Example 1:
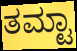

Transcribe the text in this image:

ತಮ್ಟಾ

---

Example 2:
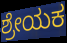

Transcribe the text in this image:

ಶ್ರೇಯಕ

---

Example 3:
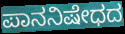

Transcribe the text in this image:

ಪಾನನಿಷೇಧದ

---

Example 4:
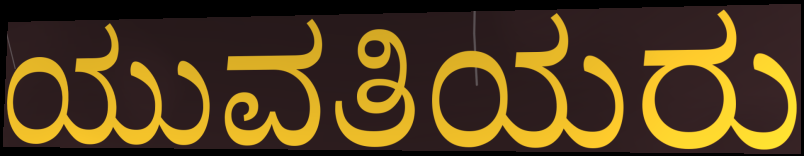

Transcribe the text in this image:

ಯುವತಿಯರು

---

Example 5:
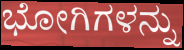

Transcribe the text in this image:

ಭೋಗಿಗಳನ್ನು